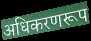
अधिकरणरूप